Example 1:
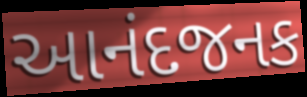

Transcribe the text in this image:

આનંદજનક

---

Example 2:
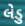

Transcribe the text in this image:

લેડુ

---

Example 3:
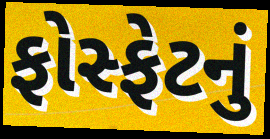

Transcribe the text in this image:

ફોસ્ફેટનું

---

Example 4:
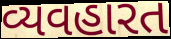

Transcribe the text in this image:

વ્યવહારત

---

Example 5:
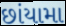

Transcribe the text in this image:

છાંયામા